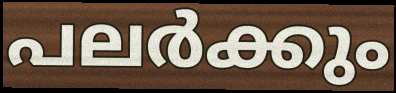
പലർക്കും